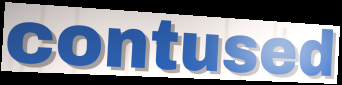
contused